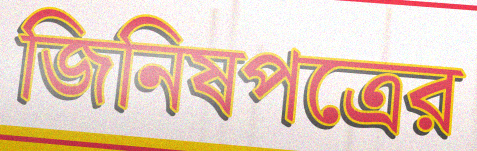
জিনিষপত্রের